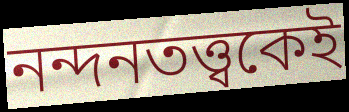
নন্দনতত্ত্বকেই